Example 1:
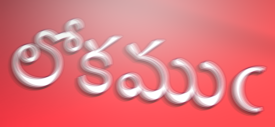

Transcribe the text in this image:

లోకముఁ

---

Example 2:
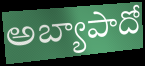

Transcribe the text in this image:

అబ్యాపాదో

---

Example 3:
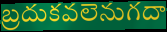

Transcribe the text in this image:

బ్రదుకవలెనుగదా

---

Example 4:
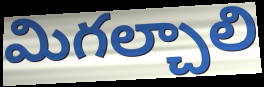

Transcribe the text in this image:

మిగల్చాలి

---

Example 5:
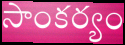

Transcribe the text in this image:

సాంకర్యం